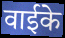
वाईके